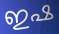
ഇഷ